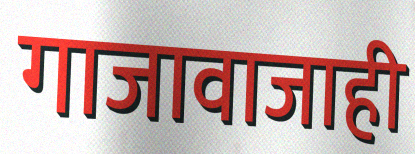
गाजावाजाही